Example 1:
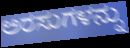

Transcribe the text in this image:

ಅರಸುಗಳನ್ನು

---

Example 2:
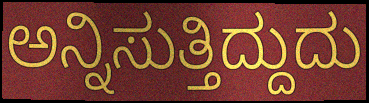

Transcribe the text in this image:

ಅನ್ನಿಸುತ್ತಿದ್ದುದು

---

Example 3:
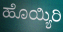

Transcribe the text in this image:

ಹೊಯ್ಯಿರಿ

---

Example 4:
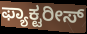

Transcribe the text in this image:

ಫ್ಯಾಕ್ಟರೀಸ್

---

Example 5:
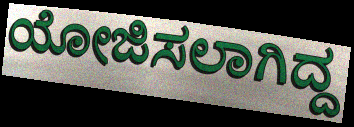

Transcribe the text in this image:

ಯೋಜಿಸಲಾಗಿದ್ದ